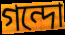
গন্দো